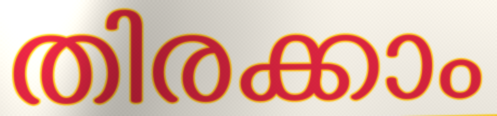
തിരക്കാം